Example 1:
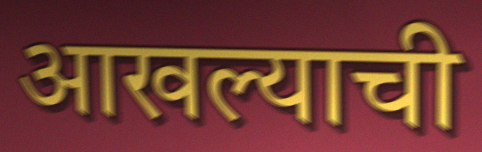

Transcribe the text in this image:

आखल्याची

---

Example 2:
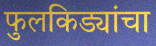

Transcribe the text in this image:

फुलकिड्यांचा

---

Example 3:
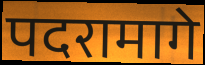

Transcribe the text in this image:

पदरामागे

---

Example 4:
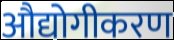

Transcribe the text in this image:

औद्योगीकरण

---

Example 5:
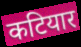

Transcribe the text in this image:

कटियार